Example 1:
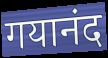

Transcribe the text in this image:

गयानंद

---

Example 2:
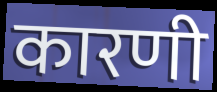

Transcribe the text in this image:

कारणी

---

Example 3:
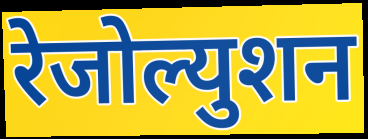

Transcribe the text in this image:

रेजोल्युशन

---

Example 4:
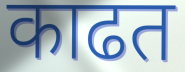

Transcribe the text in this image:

काढत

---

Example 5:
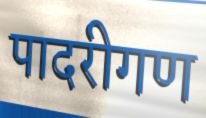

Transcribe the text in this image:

पादरीगण